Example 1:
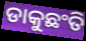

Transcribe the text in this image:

ଡାକୁଛଂତି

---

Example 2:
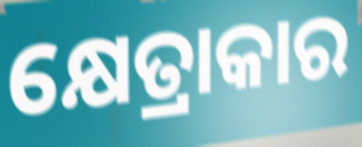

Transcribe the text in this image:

କ୍ଷେତ୍ରାକାର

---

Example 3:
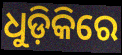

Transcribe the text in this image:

ଧୁଡ଼ିକିରେ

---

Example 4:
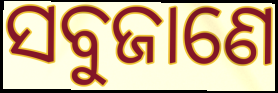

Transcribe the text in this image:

ସବୁଜାଣେ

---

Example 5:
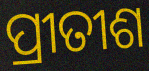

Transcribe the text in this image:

ପ୍ରୀତୀଶ